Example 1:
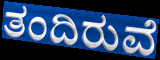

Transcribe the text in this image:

ತಂದಿರುವೆ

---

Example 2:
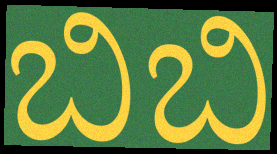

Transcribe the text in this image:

ಬಿಬಿ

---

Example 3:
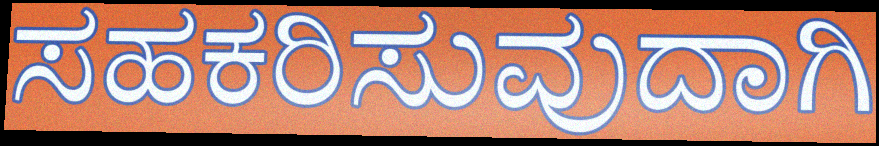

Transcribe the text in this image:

ಸಹಕರಿಸುವುದಾಗಿ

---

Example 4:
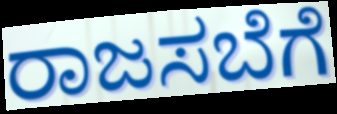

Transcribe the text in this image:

ರಾಜಸಬೆಗೆ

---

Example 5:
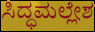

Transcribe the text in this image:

ಸಿದ್ಧಮಲ್ಲೇಶ